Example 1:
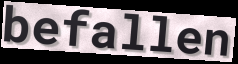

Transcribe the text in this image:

befallen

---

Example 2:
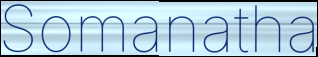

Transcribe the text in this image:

Somanatha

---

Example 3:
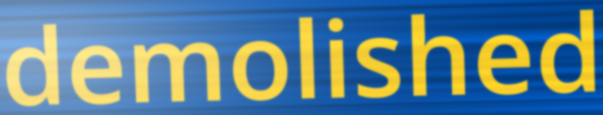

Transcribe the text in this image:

demolished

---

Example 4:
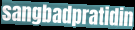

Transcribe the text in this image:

sangbadpratidin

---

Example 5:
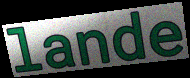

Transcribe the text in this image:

lande